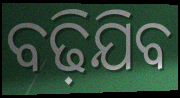
ବଢ଼ିଯିବ